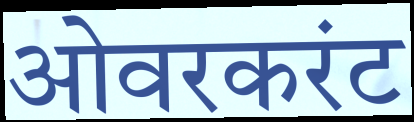
ओवरकरंट